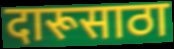
दारूसाठा